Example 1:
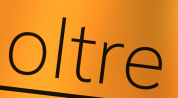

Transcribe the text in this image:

oltre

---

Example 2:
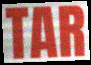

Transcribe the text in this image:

TAR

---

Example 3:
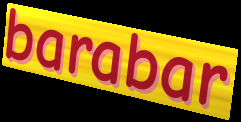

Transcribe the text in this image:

barabar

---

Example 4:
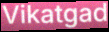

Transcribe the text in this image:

Vikatgad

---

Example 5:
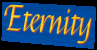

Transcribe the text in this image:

Eternity